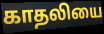
காதலியை